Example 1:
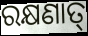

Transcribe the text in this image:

ରକ୍ଷଣାତ୍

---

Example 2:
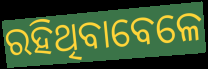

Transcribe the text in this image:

ରହିଥିବାବେଳେ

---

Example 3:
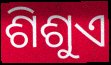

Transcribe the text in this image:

ଶିଶୁଏ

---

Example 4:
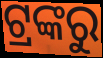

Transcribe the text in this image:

ଟ୍ରଙ୍କରୁ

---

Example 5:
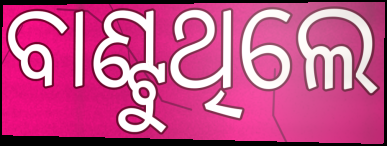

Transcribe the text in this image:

ବାଣ୍ଟୁଥିଲେ